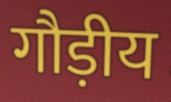
गौड़ीय